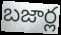
బజార్ల